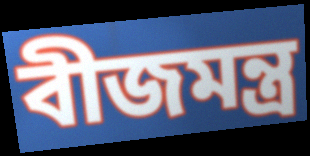
বীজমন্ত্ৰ